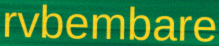
rvbembare